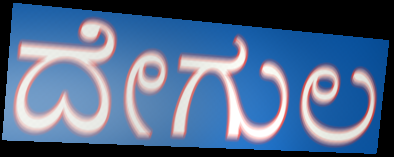
ದೇಗುಲ